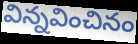
విన్నవించినం